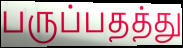
பருப்பதத்து